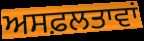
ਅਸਫ਼ਲਤਾਵਾਂ